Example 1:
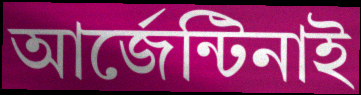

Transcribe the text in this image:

আর্জেন্টিনাই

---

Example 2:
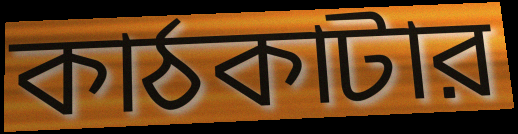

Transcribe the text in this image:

কাঠকাটার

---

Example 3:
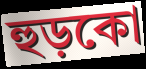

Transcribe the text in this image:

হুড়কো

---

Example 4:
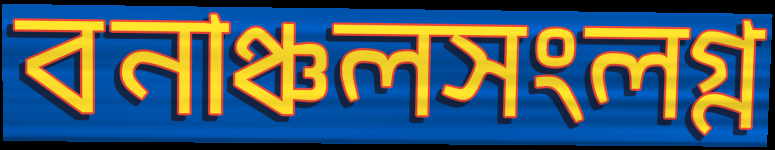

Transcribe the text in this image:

বনাঞ্চলসংলগ্ন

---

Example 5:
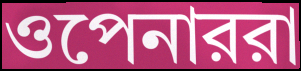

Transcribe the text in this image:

ওপেনাররা